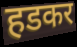
हडकर